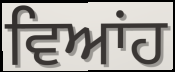
ਵਿਆਂਹ